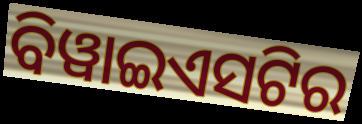
ବିୱାଇଏସଟିର